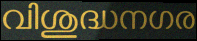
വിശുദ്ധനഗര